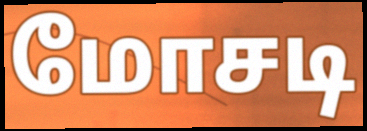
மோசடி